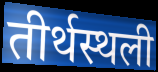
तीर्थस्थली